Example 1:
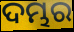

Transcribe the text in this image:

ଦମ୍ଭର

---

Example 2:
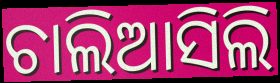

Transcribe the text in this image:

ଚାଲିଆସିଲି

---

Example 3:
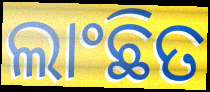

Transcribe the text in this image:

ଲାଂଛିତ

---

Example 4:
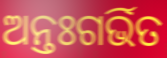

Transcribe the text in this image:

ଅନ୍ତଃଗର୍ଭିତ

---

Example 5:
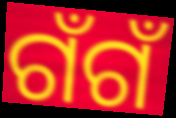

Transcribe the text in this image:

ଗଁଗଁ